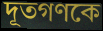
দূতগণকে